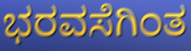
ಭರವಸೆಗಿಂತ